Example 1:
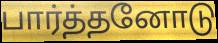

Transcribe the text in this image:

பார்த்தனோடு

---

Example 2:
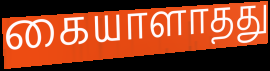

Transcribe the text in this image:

கையாளாதது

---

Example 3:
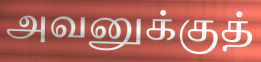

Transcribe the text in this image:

அவனுக்குத்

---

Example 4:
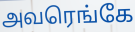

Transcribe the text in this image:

அவரெங்கே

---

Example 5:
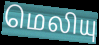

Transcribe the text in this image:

மெலியு